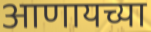
आणायच्या